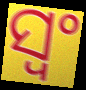
ସ୍ୱଂ